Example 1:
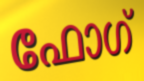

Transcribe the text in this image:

ഫോഗ്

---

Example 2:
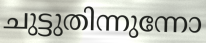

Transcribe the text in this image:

ചുട്ടുതിന്നുന്നോ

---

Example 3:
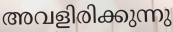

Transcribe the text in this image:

അവളിരിക്കുന്നു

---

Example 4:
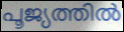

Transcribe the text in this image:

പൂജ്യത്തിൽ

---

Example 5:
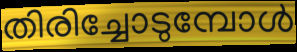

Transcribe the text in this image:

തിരിച്ചോടുമ്പോൾ